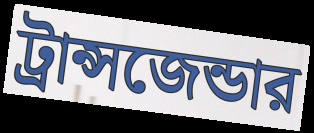
ট্রান্সজেন্ডার